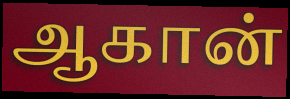
ஆகான்